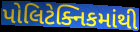
પોલિટેક્નિકમાંથી